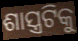
ଶାସ୍ତ୍ରଟିକୁ